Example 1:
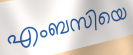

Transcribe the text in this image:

എംബസിയെ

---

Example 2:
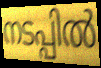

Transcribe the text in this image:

നടപ്പിൽ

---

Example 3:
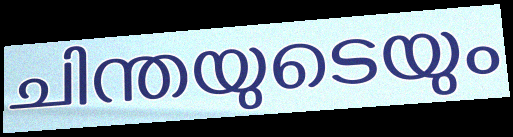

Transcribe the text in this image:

ചിന്തയുടെയും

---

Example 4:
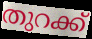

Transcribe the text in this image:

തുറക്ക്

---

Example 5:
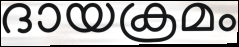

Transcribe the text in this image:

ദായക്രമം